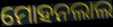
ମୋହନଲାଲ